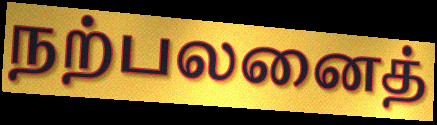
நற்பலனைத்